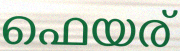
ഫെയര്